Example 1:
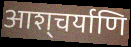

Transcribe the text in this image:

आश्चर्याणि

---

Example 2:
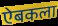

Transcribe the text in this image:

ऐबकला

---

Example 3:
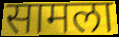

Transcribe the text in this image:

सामला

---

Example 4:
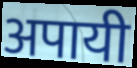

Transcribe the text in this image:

अपायी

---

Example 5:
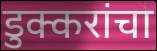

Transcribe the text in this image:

डुक्करांचा